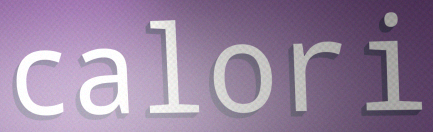
calori